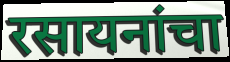
रसायनांचा